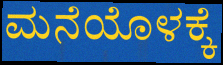
ಮನೆಯೊಳಕ್ಕೆ